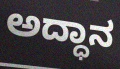
ಅದ್ಧಾನ